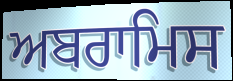
ਅਬਰਾਮਿਸ